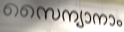
സൈന്യാനാം